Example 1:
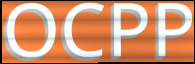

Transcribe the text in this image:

OCPP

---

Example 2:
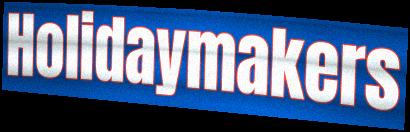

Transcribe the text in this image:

Holidaymakers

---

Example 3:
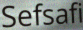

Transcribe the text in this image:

Sefsafi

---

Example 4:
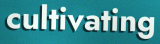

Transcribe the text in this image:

cultivating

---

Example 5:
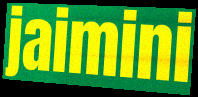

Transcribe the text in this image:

jaimini